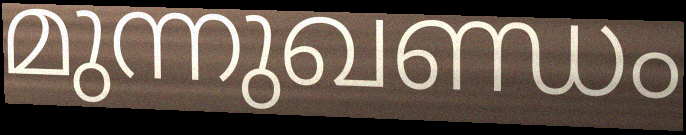
മുന്നുഖണ്ഡം